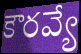
కౌరవ్యే